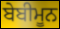
ਬੇਬੀਮੂਨ